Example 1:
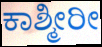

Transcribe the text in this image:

ಕಾಶ್ಮೀರೀ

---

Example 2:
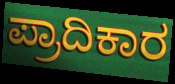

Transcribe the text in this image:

ಪ್ರಾದಿಕಾರ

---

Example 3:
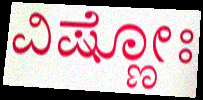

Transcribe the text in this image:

ವಿಷ್ಣೋಃ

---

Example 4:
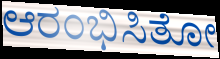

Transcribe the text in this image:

ಆರಂಭಿಸಿತೋ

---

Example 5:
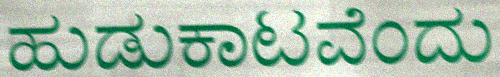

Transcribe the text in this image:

ಹುಡುಕಾಟವೆಂದು